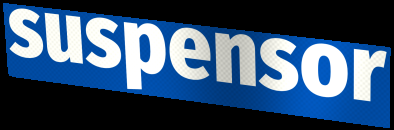
suspensor